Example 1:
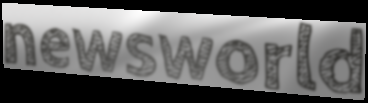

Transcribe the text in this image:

newsworld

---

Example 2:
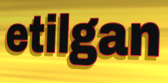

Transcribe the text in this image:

etilgan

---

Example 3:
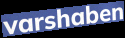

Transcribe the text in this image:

varshaben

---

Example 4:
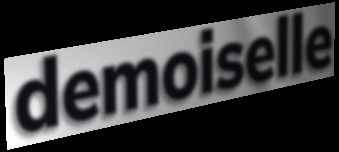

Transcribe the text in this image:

demoiselle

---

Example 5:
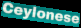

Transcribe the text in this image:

Ceylonese